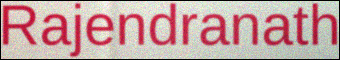
Rajendranath